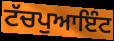
ਟੱਚਪੁਆਇੰਟ